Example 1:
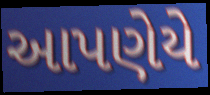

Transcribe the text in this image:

આપણેયે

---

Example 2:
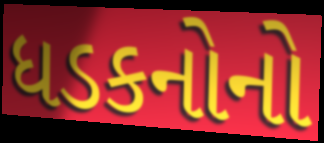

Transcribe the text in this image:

ધડકનોનો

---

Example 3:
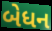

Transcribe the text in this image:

બેધન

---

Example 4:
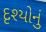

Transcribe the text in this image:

દૃશ્યોનું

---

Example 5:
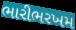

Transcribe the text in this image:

ભારીભરખમ